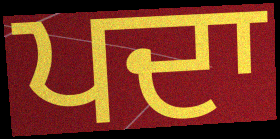
ਪਦਾ